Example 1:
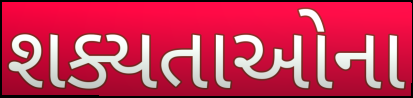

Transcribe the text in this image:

શક્યતાઓના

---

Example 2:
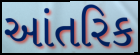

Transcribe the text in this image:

આંતરિક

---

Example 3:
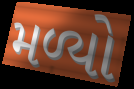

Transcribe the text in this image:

મળ્યો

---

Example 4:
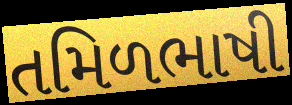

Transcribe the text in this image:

તમિળભાષી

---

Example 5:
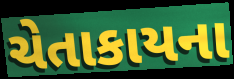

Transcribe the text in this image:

ચેતાકાયના